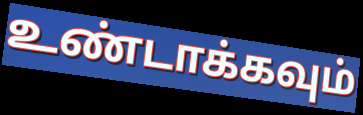
உண்டாக்கவும்